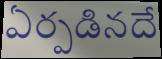
ఏర్పడినదే